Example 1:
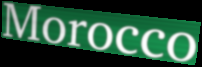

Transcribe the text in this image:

Morocco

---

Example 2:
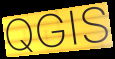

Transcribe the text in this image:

QGIS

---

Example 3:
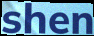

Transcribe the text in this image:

shen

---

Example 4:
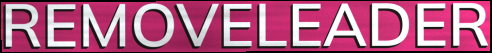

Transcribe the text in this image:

REMOVELEADER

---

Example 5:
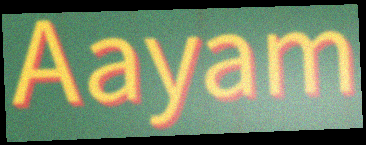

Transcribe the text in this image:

Aayam